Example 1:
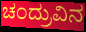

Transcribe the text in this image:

ಚಂದ್ರುವಿನ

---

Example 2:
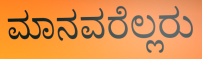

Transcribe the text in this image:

ಮಾನವರೆಲ್ಲರು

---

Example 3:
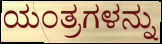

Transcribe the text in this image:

ಯಂತ್ರಗಳನ್ನು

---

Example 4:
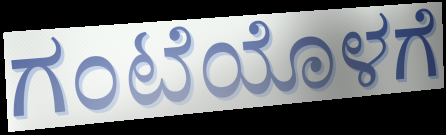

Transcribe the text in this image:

ಗಂಟೆಯೊಳಗೆ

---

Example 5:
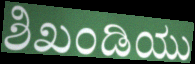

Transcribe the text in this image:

ಶಿಖಂಡಿಯು